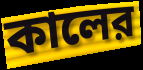
কালের